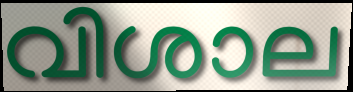
വിശാല